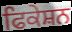
ਫਿਕੇਸ਼ਨ